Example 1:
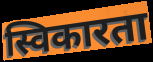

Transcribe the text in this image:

स्विकारता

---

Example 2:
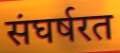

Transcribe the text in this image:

संघर्षरत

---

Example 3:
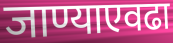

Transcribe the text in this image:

जाण्याएवढा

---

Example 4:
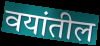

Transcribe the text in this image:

वयांतील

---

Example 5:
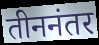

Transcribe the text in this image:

तीननंतर